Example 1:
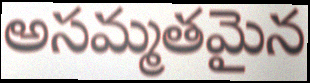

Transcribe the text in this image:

అసమ్మతమైన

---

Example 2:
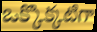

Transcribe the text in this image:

ఒక్కొక్కటిగా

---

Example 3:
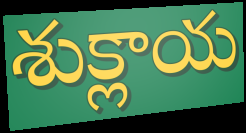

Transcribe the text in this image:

శుక్లాయ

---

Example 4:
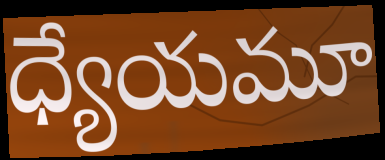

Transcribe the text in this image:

ధ్యేయమూ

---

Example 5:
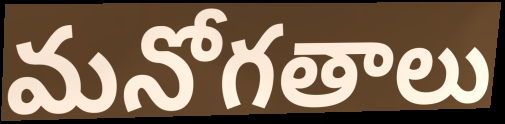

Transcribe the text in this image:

మనోగతాలు